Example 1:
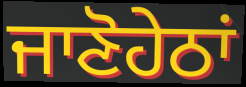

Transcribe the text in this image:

ਜਾਣੋਹੇਠਾਂ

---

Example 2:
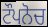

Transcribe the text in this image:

ਟੌਪਨੋਚ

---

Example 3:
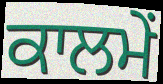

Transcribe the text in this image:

ਕਾਲਮੇਂ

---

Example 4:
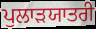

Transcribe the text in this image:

ਪੁਲਾੜਯਾਤਰੀ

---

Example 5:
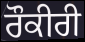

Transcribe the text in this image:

ਰੌਕੀਰੀ